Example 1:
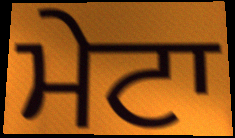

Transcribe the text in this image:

ਮੇਟਾ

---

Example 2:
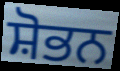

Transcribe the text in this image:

ਸ਼ੋਭਨ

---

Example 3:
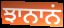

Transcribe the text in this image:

ਝਾਨਾਨਂ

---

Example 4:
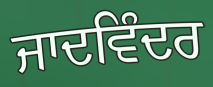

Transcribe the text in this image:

ਜਾਦਵਿੰਦਰ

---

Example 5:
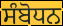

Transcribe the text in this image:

ਸੰਬੋਧਨ